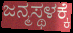
ಜನ್ಮಸ್ಥಳಕ್ಕೆ